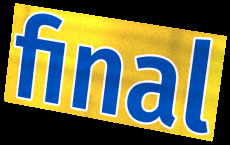
final